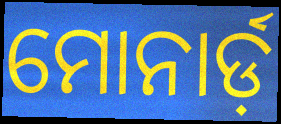
ମୋନାର୍ଡ଼